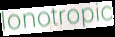
Ionotropic